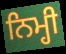
ਨਿਮ੍ਹੀ